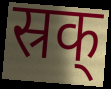
स्रक्